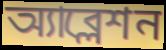
অ্যাব্লেশন